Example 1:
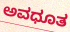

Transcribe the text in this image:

ಅವಧೂತ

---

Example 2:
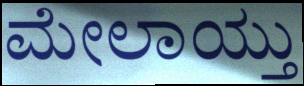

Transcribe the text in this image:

ಮೇಲಾಯ್ತು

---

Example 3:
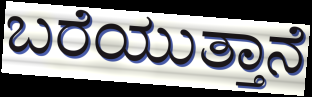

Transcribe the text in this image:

ಬರೆಯುತ್ತಾನೆ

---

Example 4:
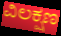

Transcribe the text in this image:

ವಿಲಕ್ಷಣ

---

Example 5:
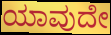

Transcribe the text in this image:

ಯಾವುದೇ